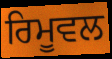
ਰਿਮੂਵਲ